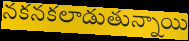
నకనకలాడుతున్నాయి